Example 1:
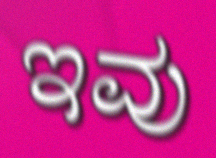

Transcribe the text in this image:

ಇವು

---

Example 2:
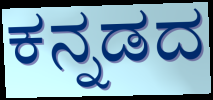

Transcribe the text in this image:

ಕನ್ನಡದ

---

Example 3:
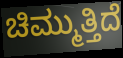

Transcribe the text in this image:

ಚಿಮ್ಮುತ್ತಿದೆ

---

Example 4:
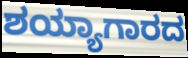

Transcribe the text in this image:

ಶಯ್ಯಾಗಾರದ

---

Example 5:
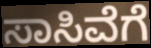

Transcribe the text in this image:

ಸಾಸಿವೆಗೆ